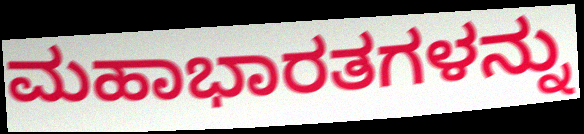
ಮಹಾಭಾರತಗಳನ್ನು